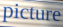
picture